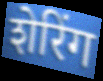
शेरिंग